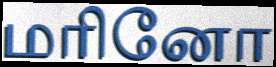
மரினோ